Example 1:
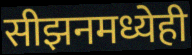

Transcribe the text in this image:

सीझनमध्येही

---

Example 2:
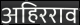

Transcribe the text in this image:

अहिरराव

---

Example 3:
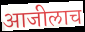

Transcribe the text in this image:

आजीलाच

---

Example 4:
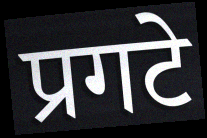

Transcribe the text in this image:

प्रगटे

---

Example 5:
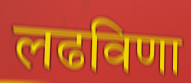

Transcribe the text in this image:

लढविणा